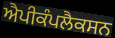
ਐਪੀਕੰਪਲੈਕਸਨ